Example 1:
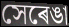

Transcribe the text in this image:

সেৰেঙা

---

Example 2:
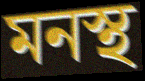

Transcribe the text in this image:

মনস্থ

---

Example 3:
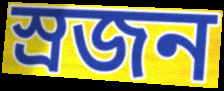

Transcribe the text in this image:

স্ৰজন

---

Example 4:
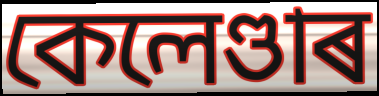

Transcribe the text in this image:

কেলেণ্ডাৰ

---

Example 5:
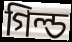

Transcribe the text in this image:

গিল্ড